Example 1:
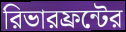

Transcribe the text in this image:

রিভারফ্রন্টের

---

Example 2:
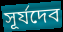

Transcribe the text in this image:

সূর্যদেব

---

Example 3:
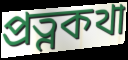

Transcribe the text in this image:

প্রত্নকথা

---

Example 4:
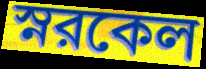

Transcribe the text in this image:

স্নরকেল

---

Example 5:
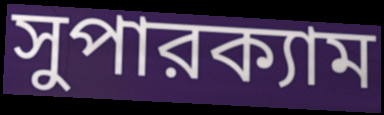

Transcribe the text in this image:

সুপারক্যাম